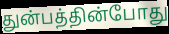
துன்பத்தின்போது